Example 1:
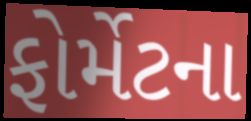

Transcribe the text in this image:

ફોર્મેટના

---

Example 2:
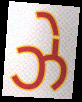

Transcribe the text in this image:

ઝે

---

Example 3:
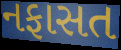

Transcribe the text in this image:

નફાસત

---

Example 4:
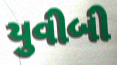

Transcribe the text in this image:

યુવીબી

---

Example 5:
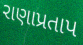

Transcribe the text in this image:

રાણાપ્રતાપ